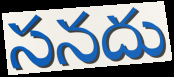
సనదు